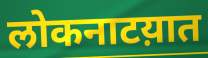
लोकनाटय़ात